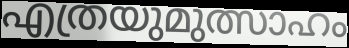
എത്രയുമുത്സാഹം